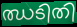
ഝടിതി